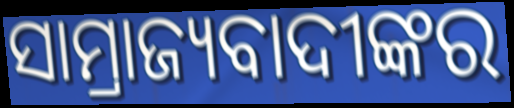
ସାମ୍ରାଜ୍ୟବାଦୀଙ୍କର